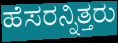
ಹೆಸರನ್ನಿತ್ತರು